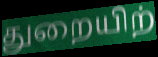
துறையிற்